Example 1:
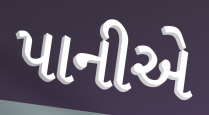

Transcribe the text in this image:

પાનીએ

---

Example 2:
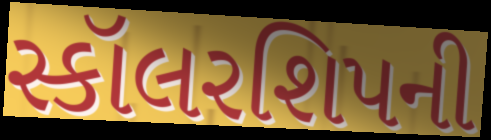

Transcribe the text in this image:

સ્કૉલરશિપની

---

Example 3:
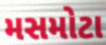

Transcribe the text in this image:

મસમોટા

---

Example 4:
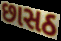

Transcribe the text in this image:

છાસઠ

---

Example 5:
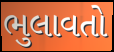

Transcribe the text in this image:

ભુલાવતો